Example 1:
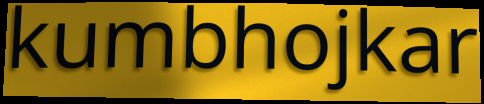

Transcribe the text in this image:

kumbhojkar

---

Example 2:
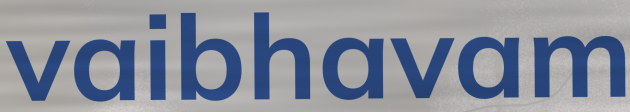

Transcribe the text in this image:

vaibhavam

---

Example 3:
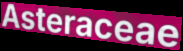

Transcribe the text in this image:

Asteraceae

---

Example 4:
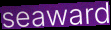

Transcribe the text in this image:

seaward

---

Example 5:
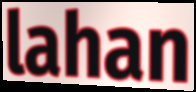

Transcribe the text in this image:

lahan